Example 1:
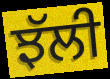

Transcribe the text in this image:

ਝੱਲੀ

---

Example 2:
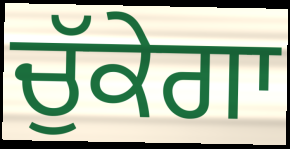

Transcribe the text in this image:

ਚੁੱਕੇਗਾ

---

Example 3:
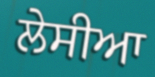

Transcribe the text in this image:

ਲੇਸੀਆ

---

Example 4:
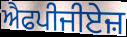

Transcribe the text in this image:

ਐਫਪੀਜੀਏਜ਼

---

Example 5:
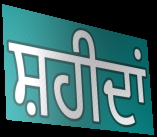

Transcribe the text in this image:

ਸ਼ਹੀਦਾਂ